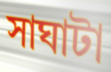
সাঘাটা